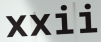
xxii